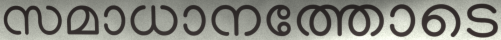
സമാധാനത്തോടെ